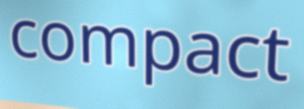
compact